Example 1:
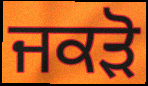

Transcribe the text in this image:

ਜਕੜੋ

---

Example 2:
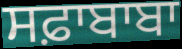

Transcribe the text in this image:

ਸਫ਼ਾਬਾਬਾ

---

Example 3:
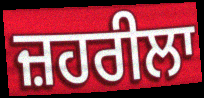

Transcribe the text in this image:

ਜ਼ਹਰੀਲਾ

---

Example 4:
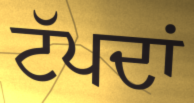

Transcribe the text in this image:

ਟੱਪਦਾਂ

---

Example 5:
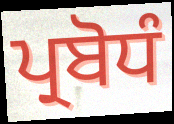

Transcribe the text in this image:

ਪ੍ਰਬੋਧੰ